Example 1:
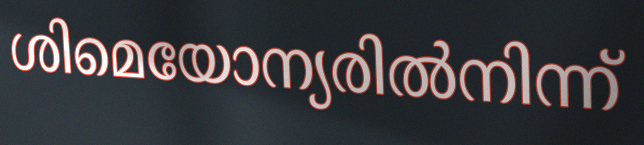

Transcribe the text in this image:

ശിമെയോന്യരിൽനിന്ന്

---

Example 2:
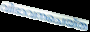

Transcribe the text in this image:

വിഭാവനചെയ്ത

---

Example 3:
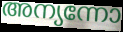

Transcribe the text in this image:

അന്യന്നോ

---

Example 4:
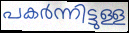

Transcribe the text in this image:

പകർന്നിട്ടുള്ള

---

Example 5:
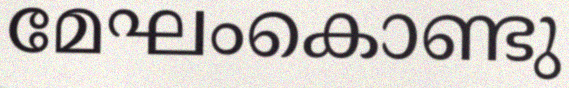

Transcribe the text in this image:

മേഘംകൊണ്ടു